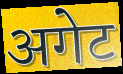
अगेट